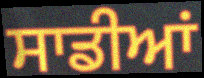
ਸਾਡੀਆਂ